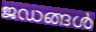
ജഡങ്ങൾ